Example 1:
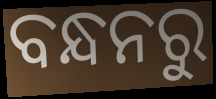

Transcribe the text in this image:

ବନ୍ଧନରୁ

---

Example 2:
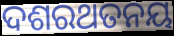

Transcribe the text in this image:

ଦଶରଥତନୟ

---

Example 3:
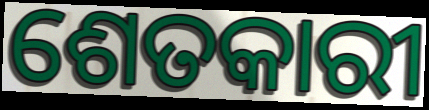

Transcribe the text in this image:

ଶେତକାରୀ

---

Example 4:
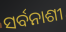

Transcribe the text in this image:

ସର୍ବନାଶୀ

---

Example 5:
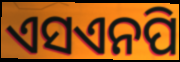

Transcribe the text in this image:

ଏସଏନପି